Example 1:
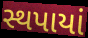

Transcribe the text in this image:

સ્થપાયાં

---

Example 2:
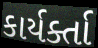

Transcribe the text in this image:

કાર્યર્ક્તા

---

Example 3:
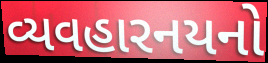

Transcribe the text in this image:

વ્યવહારનયનો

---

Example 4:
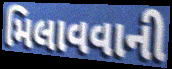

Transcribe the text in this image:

મિલાવવાની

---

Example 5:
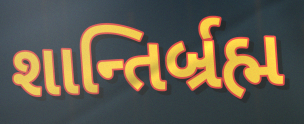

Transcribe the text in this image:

શાન્તિર્બ્રહ્મ